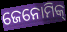
ଜେନୋମିକ୍